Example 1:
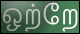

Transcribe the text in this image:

ஒற்றே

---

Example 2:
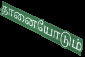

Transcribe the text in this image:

தானையோடும்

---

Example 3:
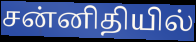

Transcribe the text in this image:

சன்னிதியில்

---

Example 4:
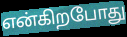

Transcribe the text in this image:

என்கிறபோது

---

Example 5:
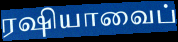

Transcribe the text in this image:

ரஷியாவைப்